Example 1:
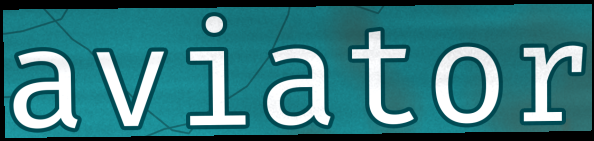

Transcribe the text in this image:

aviator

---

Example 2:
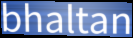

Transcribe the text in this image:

bhaltan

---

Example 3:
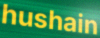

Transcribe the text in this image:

hushain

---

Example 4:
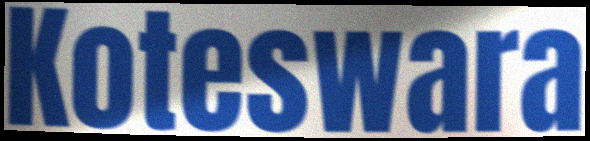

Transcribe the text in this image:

Koteswara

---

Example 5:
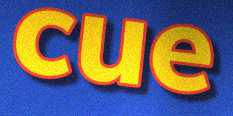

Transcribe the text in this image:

cue